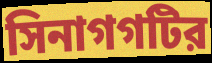
সিনাগগটির